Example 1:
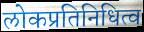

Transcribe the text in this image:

लोकप्रतिनिधित्व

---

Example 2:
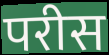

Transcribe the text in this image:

परीस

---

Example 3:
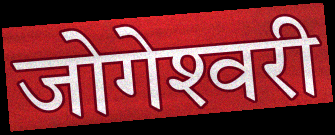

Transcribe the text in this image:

जोगेश्‍वरी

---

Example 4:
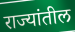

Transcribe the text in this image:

राज्यांतील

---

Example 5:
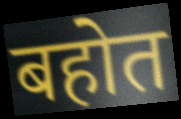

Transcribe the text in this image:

बहोत